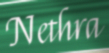
Nethra